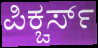
ಪಿಕ್ಚರ್ಸ್